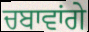
ਚਬਾਵਾਂਗੇ